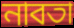
নাবতা